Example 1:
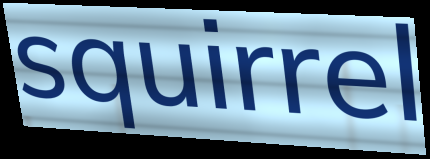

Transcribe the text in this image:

squirrel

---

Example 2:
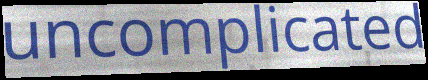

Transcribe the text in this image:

uncomplicated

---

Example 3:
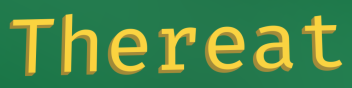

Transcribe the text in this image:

Thereat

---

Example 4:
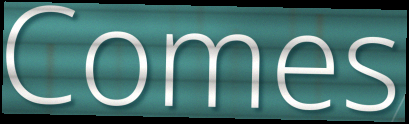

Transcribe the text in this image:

Comes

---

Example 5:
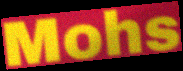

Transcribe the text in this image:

Mohs